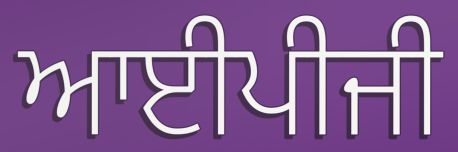
ਆਈਪੀਜੀ